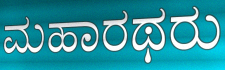
ಮಹಾರಥರು